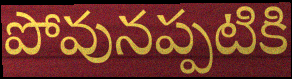
పోవునప్పటికి